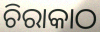
ଚିରାକାଠ